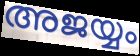
അജയ്യം